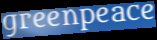
greenpeace